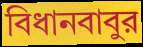
বিধানবাবুর